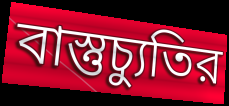
বাস্তুচ্যুতির